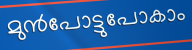
മുൻപോട്ടുപോകാം